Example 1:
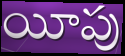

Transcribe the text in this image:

యీపు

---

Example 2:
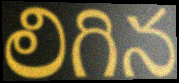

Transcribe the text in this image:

లిగిన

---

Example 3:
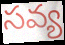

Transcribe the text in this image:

సవ్య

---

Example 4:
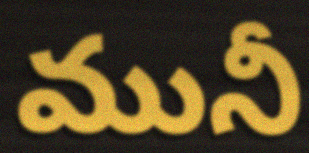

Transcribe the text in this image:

మునీ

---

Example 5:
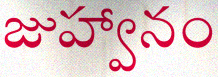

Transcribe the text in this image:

జుహ్వానం